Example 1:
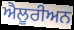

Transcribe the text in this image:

ਐਲੂਰੀਅਨ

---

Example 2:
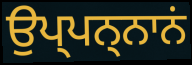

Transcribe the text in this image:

ਉਪ੍ਪਨ੍ਨਾਨਂ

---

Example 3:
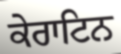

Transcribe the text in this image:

ਕੇਰਾਟਿਨ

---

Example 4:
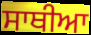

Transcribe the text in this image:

ਸਾਥੀਆ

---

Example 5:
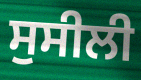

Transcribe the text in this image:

ਸੁਸੀਲੀ